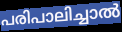
പരിപാലിച്ചാൽ